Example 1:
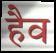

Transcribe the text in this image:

हैव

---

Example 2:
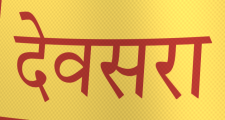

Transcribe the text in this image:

देवसरा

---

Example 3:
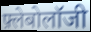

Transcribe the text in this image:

फ़्लेबोलॉजी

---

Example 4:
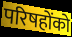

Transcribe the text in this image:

परिषहोंको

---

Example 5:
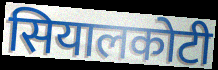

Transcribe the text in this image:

सियालकोटी